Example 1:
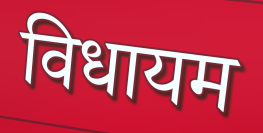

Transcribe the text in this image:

विधायम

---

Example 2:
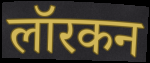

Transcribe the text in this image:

लॉरकन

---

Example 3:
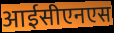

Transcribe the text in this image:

आईसीएनएस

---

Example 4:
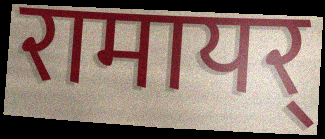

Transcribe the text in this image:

रामायर्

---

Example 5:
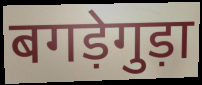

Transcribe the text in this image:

बगड़ेगुड़ा